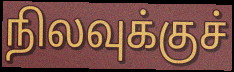
நிலவுக்குச்